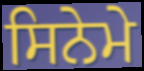
ਸਿਨੇਮੇ